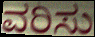
ವರಿಸು